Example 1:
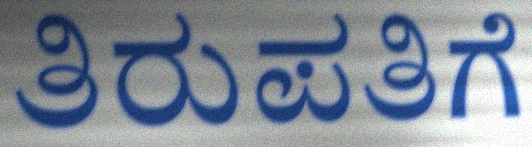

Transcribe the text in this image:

ತಿರುಪತಿಗೆ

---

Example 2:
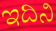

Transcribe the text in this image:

ಇದಿನಿ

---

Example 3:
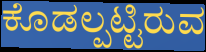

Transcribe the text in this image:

ಕೊಡಲ್ಪಟ್ಟಿರುವ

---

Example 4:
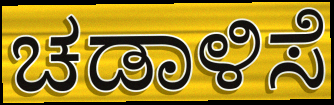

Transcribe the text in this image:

ಚಡಾಳಿಸೆ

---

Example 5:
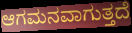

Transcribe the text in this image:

ಆಗಮನವಾಗುತ್ತದೆ